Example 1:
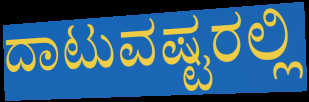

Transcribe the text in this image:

ದಾಟುವಷ್ಟರಲ್ಲಿ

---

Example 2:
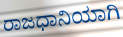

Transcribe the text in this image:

ರಾಜಧಾನಿಯಾಗಿ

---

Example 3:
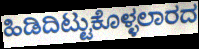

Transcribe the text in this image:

ಹಿಡಿದಿಟ್ಟುಕೊಳ್ಳಲಾರದ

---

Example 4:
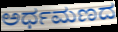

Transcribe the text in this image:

ಅರ್ಧಮಣದ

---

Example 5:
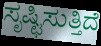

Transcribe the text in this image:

ಸೃಷ್ಟಿಸುತ್ತಿದೆ